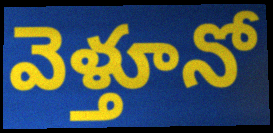
వెళ్తూనో